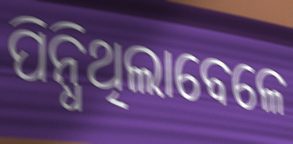
ପିନ୍ଧିଥିଲାବେଳେ